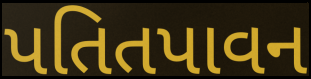
પતિતપાવન